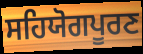
ਸਹਿਯੋਗਪੂਰਣ